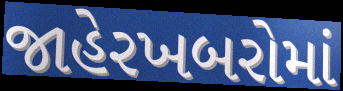
જાહેરખબરોમાં